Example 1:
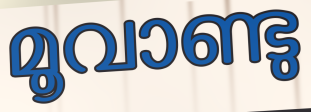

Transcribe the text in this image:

മൂവാണ്ടു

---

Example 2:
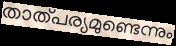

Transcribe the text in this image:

താത്പര്യമുണ്ടെന്നും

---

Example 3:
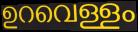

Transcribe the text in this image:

ഉറവെള്ളം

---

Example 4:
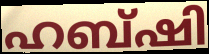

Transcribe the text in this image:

ഹബ്ഷി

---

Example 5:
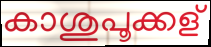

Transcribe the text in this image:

കാശുപൂക്കള്